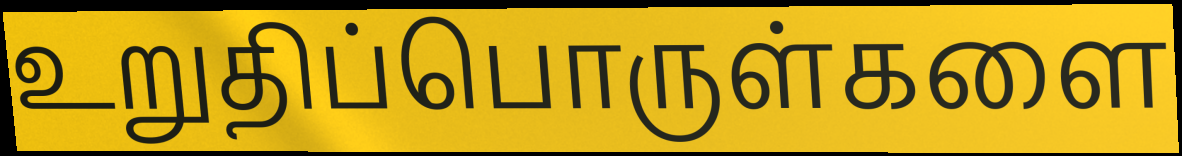
உறுதிப்பொருள்களை